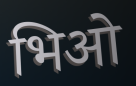
भिओ